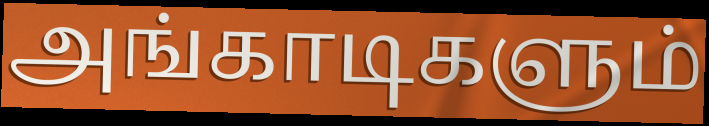
அங்காடிகளும்